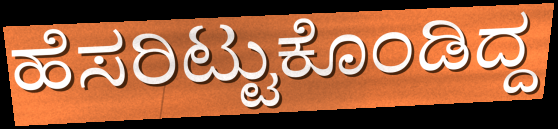
ಹೆಸರಿಟ್ಟುಕೊಂಡಿದ್ದ